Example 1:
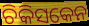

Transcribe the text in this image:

ଚିକିସକେନ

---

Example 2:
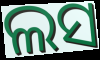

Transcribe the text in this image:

ଲସ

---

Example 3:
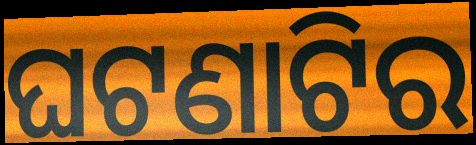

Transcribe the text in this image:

ଘଟଣାଟିର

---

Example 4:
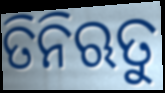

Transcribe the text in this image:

ତିନିଋତୁ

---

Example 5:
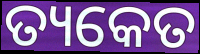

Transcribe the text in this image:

ତ୍ୟକେତ